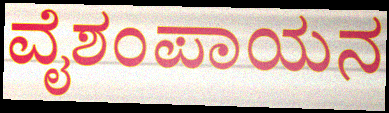
ವೈಶಂಪಾಯನ